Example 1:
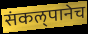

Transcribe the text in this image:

संकल्पानेच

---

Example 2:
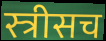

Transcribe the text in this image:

स्त्रीसच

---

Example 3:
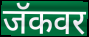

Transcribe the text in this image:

जॅकवर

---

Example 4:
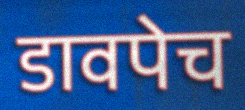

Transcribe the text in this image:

डावपेच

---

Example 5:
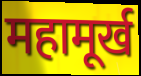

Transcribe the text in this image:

महामूर्ख